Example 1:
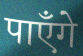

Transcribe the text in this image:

पाऍंगे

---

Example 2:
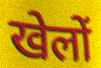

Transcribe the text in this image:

खेलों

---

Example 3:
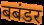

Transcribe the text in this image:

बबंडर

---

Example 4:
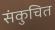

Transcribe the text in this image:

संकुचित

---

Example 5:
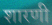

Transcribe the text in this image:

शारणी